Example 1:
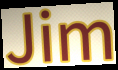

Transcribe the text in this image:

Jim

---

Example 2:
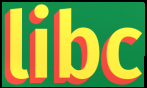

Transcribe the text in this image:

libc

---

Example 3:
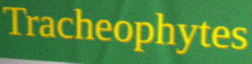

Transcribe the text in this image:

Tracheophytes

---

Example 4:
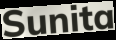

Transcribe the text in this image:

Sunita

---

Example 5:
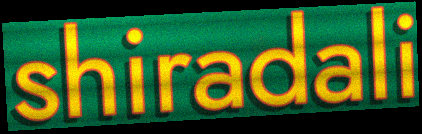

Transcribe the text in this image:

shiradali